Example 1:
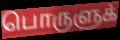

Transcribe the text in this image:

பொருளுக்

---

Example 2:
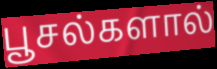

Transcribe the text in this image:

பூசல்களால்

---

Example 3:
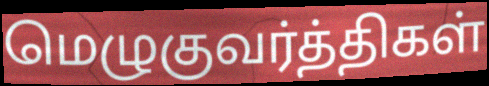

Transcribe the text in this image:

மெழுகுவர்த்திகள்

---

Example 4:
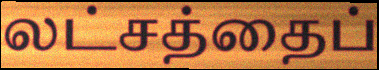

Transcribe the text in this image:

லட்சத்தைப்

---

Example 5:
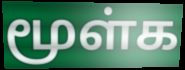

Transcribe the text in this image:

மூள்க